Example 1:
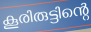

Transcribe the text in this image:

കൂരിരുട്ടിന്റെ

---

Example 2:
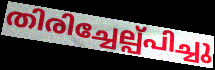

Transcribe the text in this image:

തിരിച്ചേല്പ്പിച്ചു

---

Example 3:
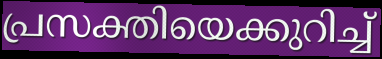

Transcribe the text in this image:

പ്രസക്തിയെക്കുറിച്ച്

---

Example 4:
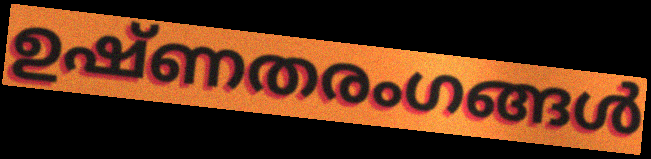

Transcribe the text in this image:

ഉഷ്ണതരംഗങ്ങൾ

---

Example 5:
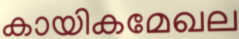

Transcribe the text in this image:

കായികമേഖല